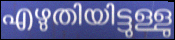
എഴുതിയിട്ടുള്ളു